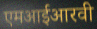
एमआईआरवी